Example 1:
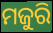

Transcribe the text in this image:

ମଜୁରି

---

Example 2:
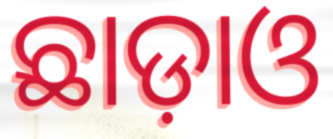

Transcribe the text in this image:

ଛାଡ଼ାଓ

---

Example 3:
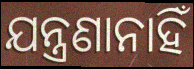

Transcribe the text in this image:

ଯନ୍ତ୍ରଣାନାହିଁ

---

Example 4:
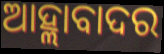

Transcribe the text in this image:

ଆହ୍ଲାବାଦର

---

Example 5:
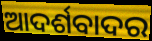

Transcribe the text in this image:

ଆଦର୍ଶବାଦର